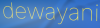
dewayani